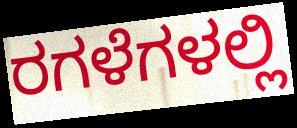
ರಗಳೆಗಳಲ್ಲಿ